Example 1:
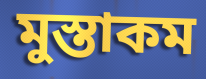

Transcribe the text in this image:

মুস্তাকম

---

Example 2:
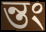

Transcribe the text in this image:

ন্তং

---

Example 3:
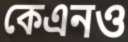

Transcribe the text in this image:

কেএনও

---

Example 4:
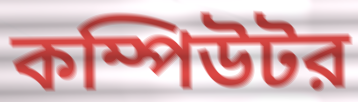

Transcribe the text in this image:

কম্পিউটর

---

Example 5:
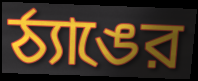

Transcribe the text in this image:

ঠ্যাঙের